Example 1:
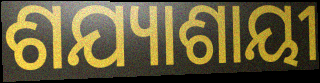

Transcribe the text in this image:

ଶଯ୍ୟାଶାୟୀ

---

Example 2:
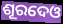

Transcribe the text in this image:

ଶୂରଦେଓ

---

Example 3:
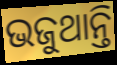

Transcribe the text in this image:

ଭଜୁଥାନ୍ତି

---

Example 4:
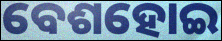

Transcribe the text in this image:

ବେଶହୋଇ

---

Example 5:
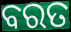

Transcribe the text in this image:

ବରତ